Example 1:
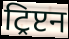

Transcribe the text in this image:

ट्रिप्टन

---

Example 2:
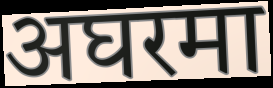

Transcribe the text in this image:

अघरमा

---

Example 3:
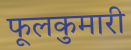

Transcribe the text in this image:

फूलकुमारी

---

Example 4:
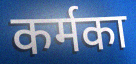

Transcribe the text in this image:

कर्मका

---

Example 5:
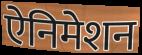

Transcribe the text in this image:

ऐनिमेशन